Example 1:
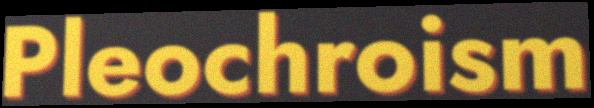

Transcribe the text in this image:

Pleochroism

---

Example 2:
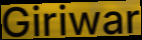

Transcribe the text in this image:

Giriwar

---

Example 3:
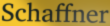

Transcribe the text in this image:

Schaffner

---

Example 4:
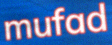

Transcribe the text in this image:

mufad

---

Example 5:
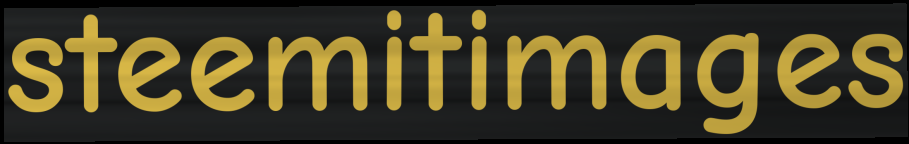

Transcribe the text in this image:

steemitimages